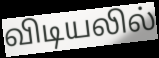
விடியலில்